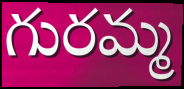
గురమ్మ